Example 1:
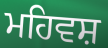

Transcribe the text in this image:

ਮਹਿਵਸ਼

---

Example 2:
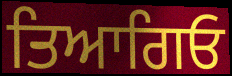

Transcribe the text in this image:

ਤਿਆਗਿਓ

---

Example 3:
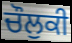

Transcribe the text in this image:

ਚੌਲੁਕੀ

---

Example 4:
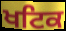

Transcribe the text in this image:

ਖਟਿਕ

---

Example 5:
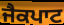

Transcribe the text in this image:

ਜੈਕਪਾਟ